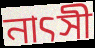
নাৎসী